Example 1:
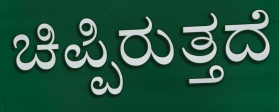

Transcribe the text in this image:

ಚಿಪ್ಪಿರುತ್ತದೆ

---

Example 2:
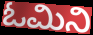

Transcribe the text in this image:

ಓಮಿನಿ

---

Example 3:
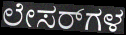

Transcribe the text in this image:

ಲೇಸರ್‌ಗಳ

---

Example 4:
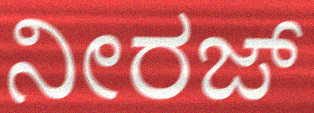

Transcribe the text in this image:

ನೀರಜ್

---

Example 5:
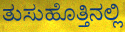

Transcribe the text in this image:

ತುಸುಹೊತ್ತಿನಲ್ಲಿ